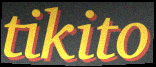
tikito